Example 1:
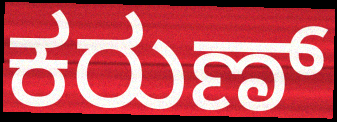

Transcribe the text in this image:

ಕರುಣ್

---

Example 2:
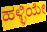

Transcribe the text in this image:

ಹಳ್ಳಿಯೇ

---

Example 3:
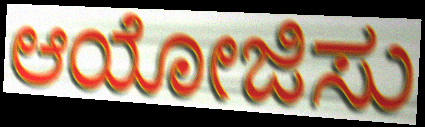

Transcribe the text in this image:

ಆಯೋಜಿಸು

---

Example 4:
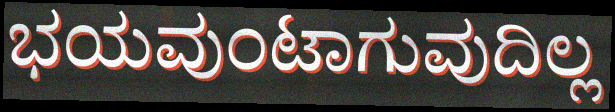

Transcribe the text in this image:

ಭಯವುಂಟಾಗುವುದಿಲ್ಲ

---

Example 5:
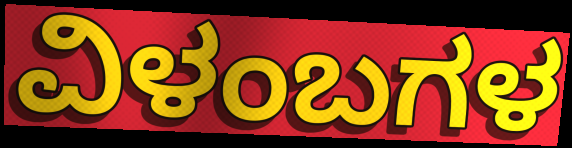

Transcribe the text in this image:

ವಿಳಂಬಗಳ